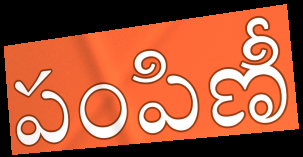
పంపిణీ